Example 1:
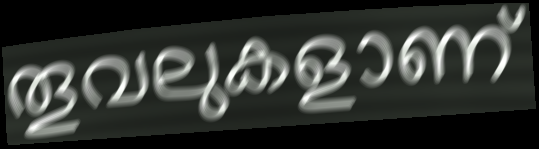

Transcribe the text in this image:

തൂവലുകളാണ്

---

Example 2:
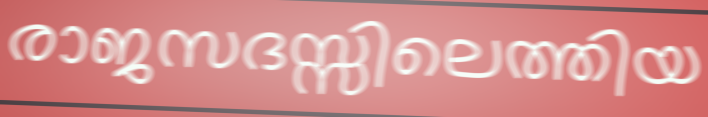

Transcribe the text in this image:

രാജസദസ്സിലെത്തിയ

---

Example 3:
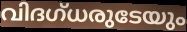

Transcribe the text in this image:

വിദഗ്ധരുടേയും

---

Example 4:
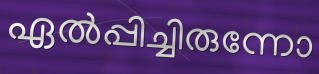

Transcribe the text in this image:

ഏൽപ്പിച്ചിരുന്നോ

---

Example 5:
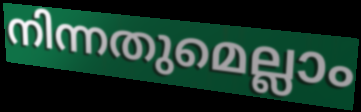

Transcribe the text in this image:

നിന്നതുമെല്ലാം